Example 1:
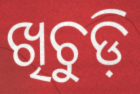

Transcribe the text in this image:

ଖିଚୁଡ଼ି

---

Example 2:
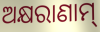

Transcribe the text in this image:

ଅକ୍ଷରାଣାମ୍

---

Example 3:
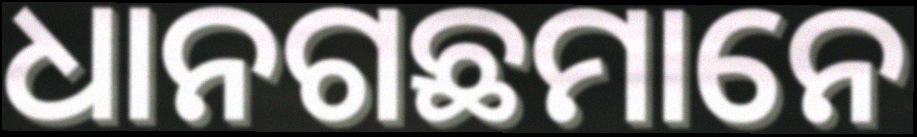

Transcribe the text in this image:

ଧାନଗଛମାନେ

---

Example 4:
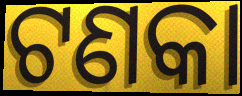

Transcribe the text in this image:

ଟଣକା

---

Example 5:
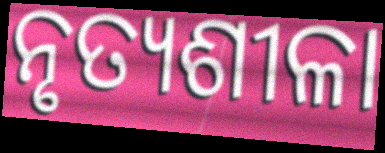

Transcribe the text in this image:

ନୃତ୍ୟଶୀଳା